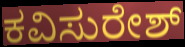
ಕವಿಸುರೇಶ್